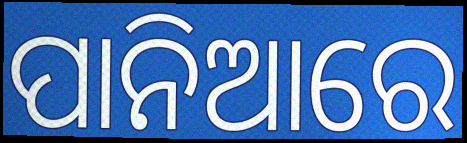
ପାନିଆରେ